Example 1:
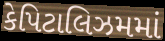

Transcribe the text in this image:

કેપિટાલિઝમમાં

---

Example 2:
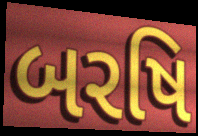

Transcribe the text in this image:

બરષિ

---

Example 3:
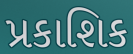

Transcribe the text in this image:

પ્રકાશિક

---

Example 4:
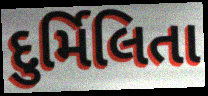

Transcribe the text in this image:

દુર્મિલિતા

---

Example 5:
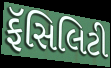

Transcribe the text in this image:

ફૅસિલિટી